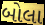
બોલા